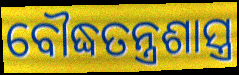
ବୌଦ୍ଧତନ୍ତ୍ରଶାସ୍ତ୍ର